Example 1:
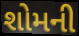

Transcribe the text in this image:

શોમની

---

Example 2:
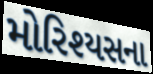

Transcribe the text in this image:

મોરિશ્યસના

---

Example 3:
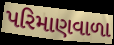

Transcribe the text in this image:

પરિમાણવાળા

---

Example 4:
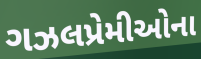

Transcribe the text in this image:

ગઝલપ્રેમીઓના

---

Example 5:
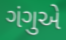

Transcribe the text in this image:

ગંગુએ